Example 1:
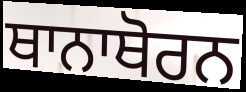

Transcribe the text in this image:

ਥਾਨਾਥੋਰਨ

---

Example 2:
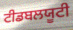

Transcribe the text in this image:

ਟੀਡਬਲਯੂਟੀ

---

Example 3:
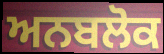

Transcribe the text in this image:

ਅਨਬਲੋਕ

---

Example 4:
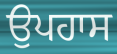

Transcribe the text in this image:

ਉਪਹਾਸ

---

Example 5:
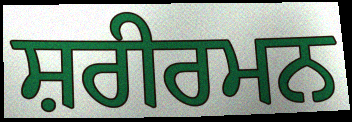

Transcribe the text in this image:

ਸ਼ਰੀਰਮਨ